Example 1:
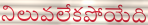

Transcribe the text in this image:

నిలువలేకపోయేది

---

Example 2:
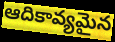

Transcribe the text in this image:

ఆదికావ్యమైన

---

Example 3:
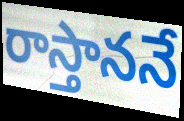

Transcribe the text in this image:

రాస్తాననే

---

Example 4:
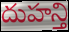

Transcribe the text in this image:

దుహన్తి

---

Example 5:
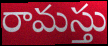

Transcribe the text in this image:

రామస్తు